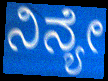
ನಿನ್ಯೇ